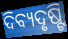
ଦିବ୍ୟଦୃଷ୍ଟି